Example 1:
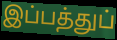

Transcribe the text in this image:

இப்பத்துப்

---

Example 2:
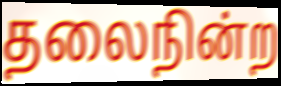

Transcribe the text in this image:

தலைநின்ற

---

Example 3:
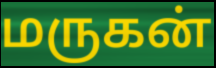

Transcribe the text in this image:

மருகன்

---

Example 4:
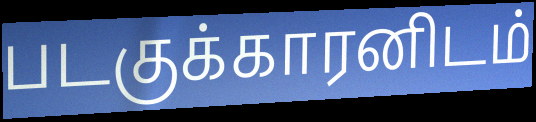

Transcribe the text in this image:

படகுக்காரனிடம்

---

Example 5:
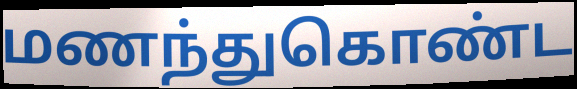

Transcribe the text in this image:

மணந்துகொண்ட